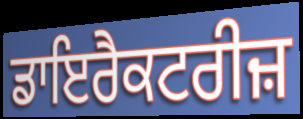
ਡਾਇਰੈਕਟਰੀਜ਼